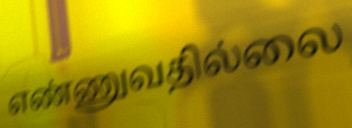
எண்ணுவதில்லை